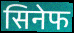
सिनेफ